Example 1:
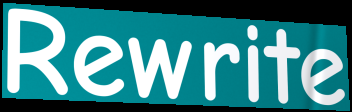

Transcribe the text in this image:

Rewrite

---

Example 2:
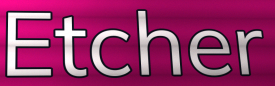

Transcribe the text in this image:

Etcher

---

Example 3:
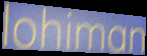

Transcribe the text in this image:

lohiman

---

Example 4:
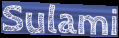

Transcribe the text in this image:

Sulami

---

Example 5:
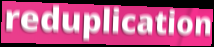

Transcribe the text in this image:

reduplication